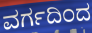
ವರ್ಗದಿಂದ